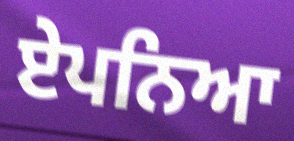
ਏਪਨਿਆ